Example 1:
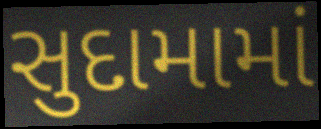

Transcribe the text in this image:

સુદામામાં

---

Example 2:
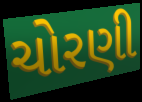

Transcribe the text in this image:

ચોરણી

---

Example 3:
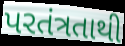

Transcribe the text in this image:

પરતંત્રતાથી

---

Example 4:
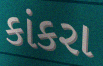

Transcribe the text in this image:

કાંકરા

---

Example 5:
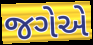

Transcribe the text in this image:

જગેએ